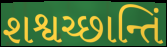
શશ્વચ્છાન્તિં